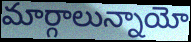
మార్గాలున్నాయో